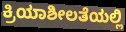
ಕ್ರಿಯಾಶೀಲತೆಯಲ್ಲಿ